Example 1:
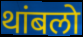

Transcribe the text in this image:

थांबलो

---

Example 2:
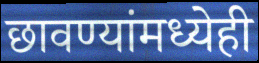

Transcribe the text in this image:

छावण्यांमध्येही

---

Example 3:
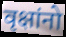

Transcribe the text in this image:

वृक्षांनो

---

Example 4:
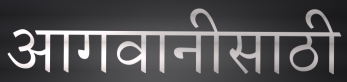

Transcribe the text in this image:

आगवानीसाठी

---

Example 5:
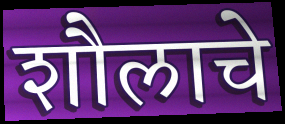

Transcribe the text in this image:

शौलाचे